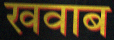
खवाब